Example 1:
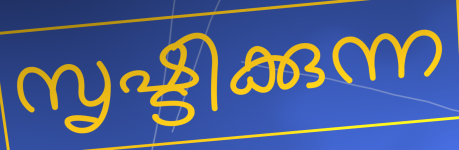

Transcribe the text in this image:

സൃഷ്ടിക്കുന്ന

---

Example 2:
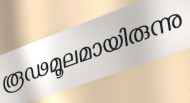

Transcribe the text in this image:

രൂഢമൂലമായിരുന്നു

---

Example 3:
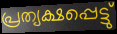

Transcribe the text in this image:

പ്രത്യക്ഷപ്പെട്ടു്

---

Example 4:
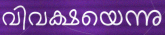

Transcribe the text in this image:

വിവക്ഷയെന്നു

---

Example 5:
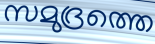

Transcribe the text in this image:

സമുദ്രത്തെ